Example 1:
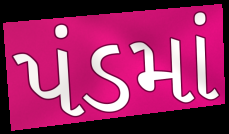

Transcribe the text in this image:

પંડમાં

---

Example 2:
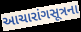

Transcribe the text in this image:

આચારાંગસૂત્રના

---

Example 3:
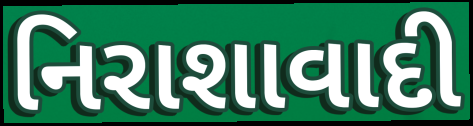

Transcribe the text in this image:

નિરાશાવાદી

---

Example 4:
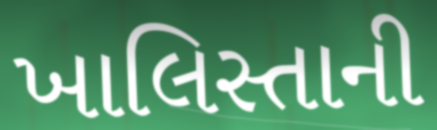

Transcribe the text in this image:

ખાલિસ્તાની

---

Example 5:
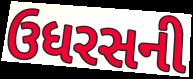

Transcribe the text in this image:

ઉધરસની